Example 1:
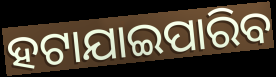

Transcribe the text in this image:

ହଟାଯାଇପାରିବ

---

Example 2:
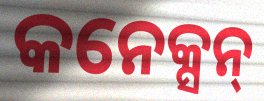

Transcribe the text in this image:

କନେକ୍ସନ୍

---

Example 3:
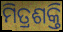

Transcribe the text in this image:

ମିତ୍ରଶକ୍ତି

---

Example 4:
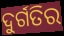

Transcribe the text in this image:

ଦୁର୍ଗତିର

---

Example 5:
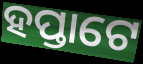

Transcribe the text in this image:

ହପ୍ତାଟେ